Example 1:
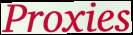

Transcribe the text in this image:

Proxies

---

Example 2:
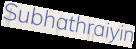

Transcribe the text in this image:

Subhathraiyin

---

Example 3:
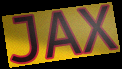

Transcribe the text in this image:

JAX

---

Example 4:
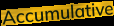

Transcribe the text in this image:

Accumulative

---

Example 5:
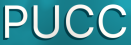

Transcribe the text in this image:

PUCC